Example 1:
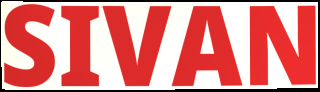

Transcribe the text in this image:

SIVAN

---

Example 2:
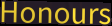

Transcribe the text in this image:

Honours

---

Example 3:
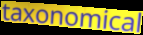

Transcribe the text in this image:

taxonomical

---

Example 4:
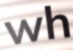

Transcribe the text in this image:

wh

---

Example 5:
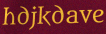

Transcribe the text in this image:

hdjkdave